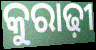
କୁରାଢ଼ୀ